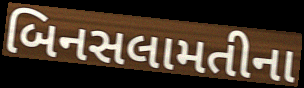
બિનસલામતીના